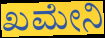
ಖಮೇನಿ